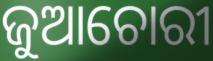
ଜୁଆଚୋରୀ